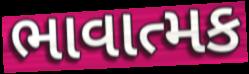
ભાવાત્મક